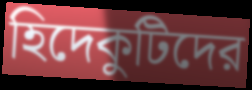
হিদেকুটিদের